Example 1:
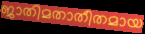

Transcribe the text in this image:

ജാതിമതാതീതമായ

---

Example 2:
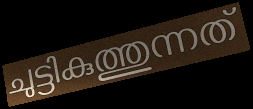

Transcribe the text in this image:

ചുട്ടികുത്തുന്നത്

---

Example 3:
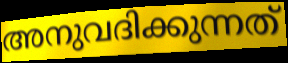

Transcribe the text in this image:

അനുവദിക്കുന്നത്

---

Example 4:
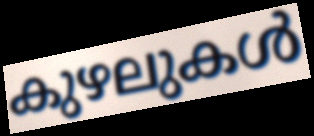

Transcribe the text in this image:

കുഴലുകൾ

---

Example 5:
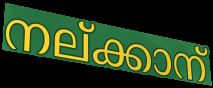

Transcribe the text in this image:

നല്ക്കാന്